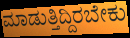
ಮಾಡುತ್ತಿದ್ದಿರಬೇಕು